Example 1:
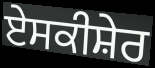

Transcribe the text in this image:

ਏਸਕੀਸ਼ੇਰ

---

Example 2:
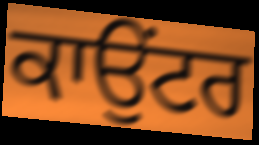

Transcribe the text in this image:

ਕਾਉਂਟਰ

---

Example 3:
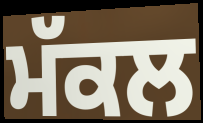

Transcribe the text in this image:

ਮੱਕਲ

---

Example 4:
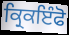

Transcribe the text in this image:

ਕ੍ਰਿਕਇੰਫੋ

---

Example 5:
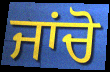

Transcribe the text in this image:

ਜਾਂਚੋ